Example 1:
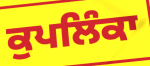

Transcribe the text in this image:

ਕੁਪਲਿੰਕਾ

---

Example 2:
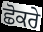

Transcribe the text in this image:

ਛੋਕਰੇ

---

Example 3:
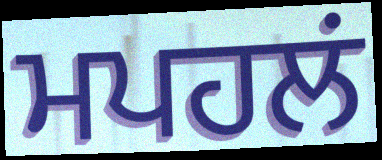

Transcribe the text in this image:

ਮਪਹਲਂ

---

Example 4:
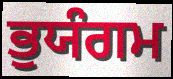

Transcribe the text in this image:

ਭੁਯੰਗਮ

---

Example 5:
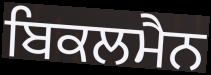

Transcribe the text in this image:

ਬਿਕਲਮੈਨ